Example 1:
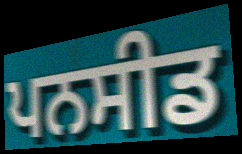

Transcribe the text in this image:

ਪਨਸੀਡ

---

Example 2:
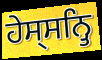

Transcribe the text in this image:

ਹੇਸ੍ਸਨ੍ਤਿ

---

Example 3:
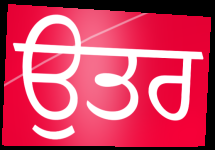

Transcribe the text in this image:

ਉੁਤਰ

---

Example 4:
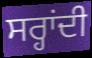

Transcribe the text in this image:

ਸਰ੍ਹਾਂਦੀ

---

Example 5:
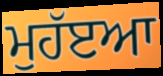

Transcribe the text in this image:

ਮੁਹੱੲਆ